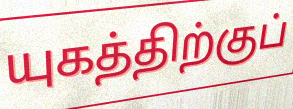
யுகத்திற்குப்